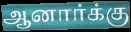
ஆனார்க்கு